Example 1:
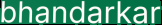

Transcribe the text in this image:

bhandarkar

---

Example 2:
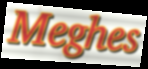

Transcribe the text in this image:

Meghes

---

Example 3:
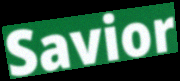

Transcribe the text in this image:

Savior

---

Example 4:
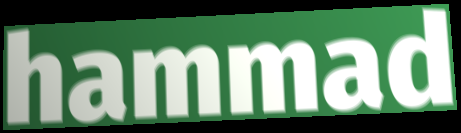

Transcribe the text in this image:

hammad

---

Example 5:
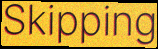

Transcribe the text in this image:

Skipping